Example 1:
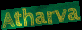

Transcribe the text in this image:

Atharva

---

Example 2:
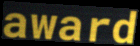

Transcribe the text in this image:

award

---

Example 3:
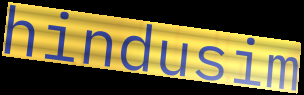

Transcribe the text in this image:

hindusim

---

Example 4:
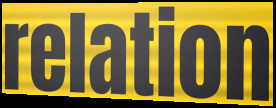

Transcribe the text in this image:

relation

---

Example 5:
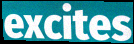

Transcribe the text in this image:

excites